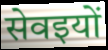
सेवइयों